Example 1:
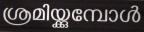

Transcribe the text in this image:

ശ്രമിയ്ക്കുമ്പോൾ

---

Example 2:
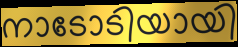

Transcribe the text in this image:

നാടോടിയായി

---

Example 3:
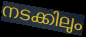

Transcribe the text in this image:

നടക്കിലും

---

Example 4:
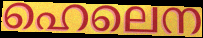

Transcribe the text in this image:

ഹെലെന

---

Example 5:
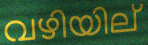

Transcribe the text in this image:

വഴിയില്